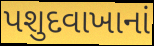
પશુદવાખાનાં